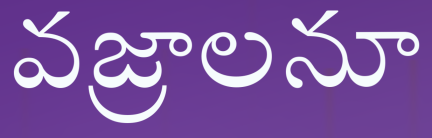
వజ్రాలనూ